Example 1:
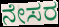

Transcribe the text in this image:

ನೇಸರ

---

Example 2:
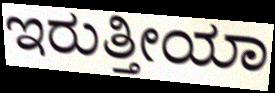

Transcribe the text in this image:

ಇರುತ್ತೀಯಾ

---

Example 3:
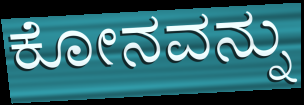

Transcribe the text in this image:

ಕೋನವನ್ನು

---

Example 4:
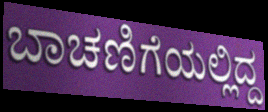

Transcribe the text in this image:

ಬಾಚಣಿಗೆಯಲ್ಲಿದ್ದ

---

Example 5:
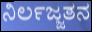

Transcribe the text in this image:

ನಿರ್ಲಜ್ಜತನ